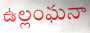
ఉల్లంఘనా